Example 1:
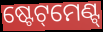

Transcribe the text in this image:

ଷ୍ଟେଟ୍‌ମେଣ୍ଟ୍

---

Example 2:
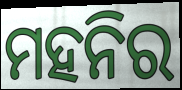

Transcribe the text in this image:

ମହନିର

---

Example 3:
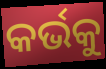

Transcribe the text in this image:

କର୍ଭକୁ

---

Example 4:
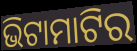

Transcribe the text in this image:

ଭିଟାମାଟିର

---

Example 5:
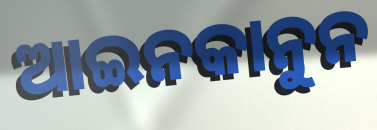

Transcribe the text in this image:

ଆଇନକାନୁନ